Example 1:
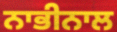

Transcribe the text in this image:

ਨਾਭੀਨਾਲ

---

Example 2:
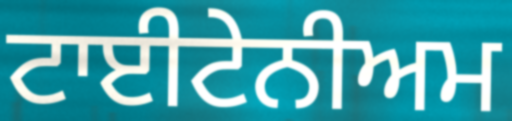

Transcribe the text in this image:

ਟਾਈਟੇਨੀਅਮ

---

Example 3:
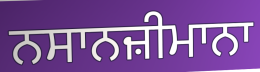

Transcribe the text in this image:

ਨਸਾਨਜ਼ੀਮਾਨਾ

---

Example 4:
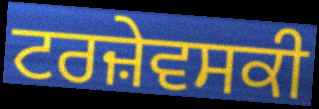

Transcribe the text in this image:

ਟਰਜ਼ੇਵਸਕੀ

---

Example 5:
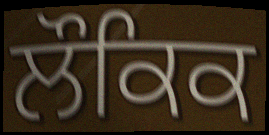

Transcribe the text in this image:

ਲੌਕਿਕ